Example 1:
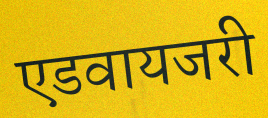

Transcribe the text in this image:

एडवायजरी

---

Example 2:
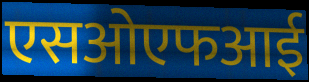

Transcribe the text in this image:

एसओएफआई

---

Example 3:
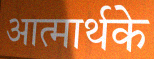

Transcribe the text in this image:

आत्मार्थके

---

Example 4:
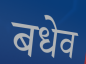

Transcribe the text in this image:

बधेव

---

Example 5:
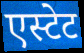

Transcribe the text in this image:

एस्टेट